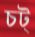
চট্